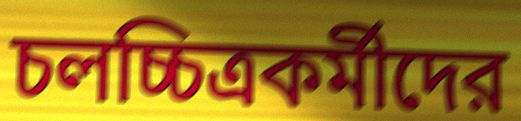
চলচ্চিত্রকর্মীদের